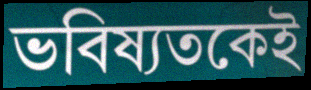
ভবিষ্যতকেই